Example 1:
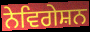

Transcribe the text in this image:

ਨੇਵਿਗੇਸ਼ਨ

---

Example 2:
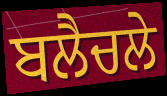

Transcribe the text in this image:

ਬਲੈਚਲੇ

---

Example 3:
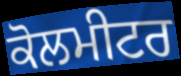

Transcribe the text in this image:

ਕੋਲਮੀਟਰ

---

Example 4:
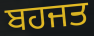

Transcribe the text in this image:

ਬਹਜਤ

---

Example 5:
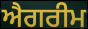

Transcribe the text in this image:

ਐਗਰੀਮ